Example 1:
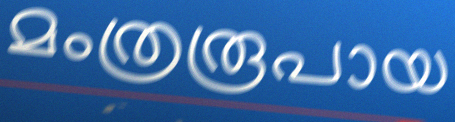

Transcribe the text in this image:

മംത്രരൂപായ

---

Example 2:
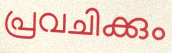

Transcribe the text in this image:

പ്രവചിക്കും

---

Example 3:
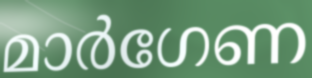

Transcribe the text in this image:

മാർഗേണ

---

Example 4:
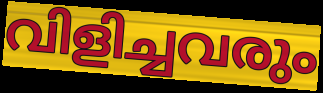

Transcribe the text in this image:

വിളിച്ചവരും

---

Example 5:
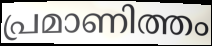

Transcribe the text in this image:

പ്രമാണിത്തം